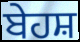
ਬੇਹਸ਼